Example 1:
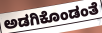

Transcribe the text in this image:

ಅಡಗಿಕೊಂಡಂತೆ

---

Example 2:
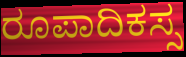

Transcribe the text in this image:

ರೂಪಾದಿಕಸ್ಸ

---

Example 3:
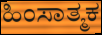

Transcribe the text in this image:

ಹಿಂಸಾತ್ಮಕ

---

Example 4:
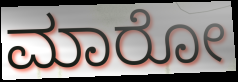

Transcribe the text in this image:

ಮಾರೋ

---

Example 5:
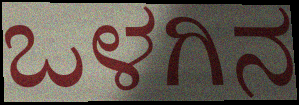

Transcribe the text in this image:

ಒಳಗಿನ